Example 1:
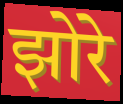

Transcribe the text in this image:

झोरे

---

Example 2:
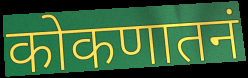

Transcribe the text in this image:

कोकणातनं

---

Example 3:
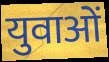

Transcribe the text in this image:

युवाओं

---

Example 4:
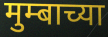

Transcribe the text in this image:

मुम्बाच्या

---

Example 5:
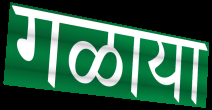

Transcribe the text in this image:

गळाया